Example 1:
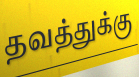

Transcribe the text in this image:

தவத்துக்கு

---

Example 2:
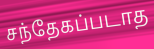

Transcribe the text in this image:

சந்தேகப்படாத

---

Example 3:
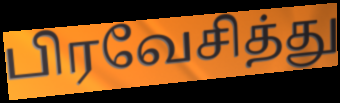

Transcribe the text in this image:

பிரவேசித்து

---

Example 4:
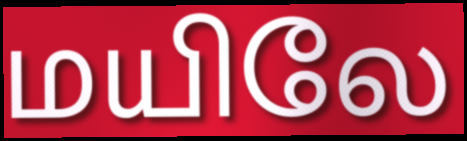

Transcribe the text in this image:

மயிலே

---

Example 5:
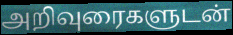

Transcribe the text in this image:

அறிவுரைகளுடன்